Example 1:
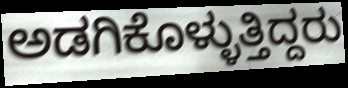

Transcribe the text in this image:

ಅಡಗಿಕೊಳ್ಳುತ್ತಿದ್ದರು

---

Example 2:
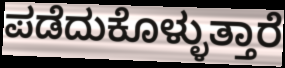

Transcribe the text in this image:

ಪಡೆದುಕೊಳ್ಳುತ್ತಾರೆ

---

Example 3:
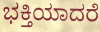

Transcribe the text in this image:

ಭಕ್ತಿಯಾದರೆ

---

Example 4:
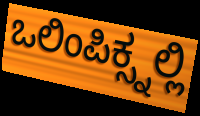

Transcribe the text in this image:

ಒಲಿಂಪಿಕ್ಸ್ನಲ್ಲಿ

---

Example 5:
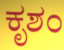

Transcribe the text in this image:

ಕೃಶಂ